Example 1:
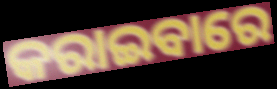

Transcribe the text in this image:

କରାଇବାରେ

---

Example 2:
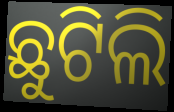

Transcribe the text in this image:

ଛୁଟିଲି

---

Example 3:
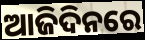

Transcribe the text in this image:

ଆଜିଦିନରେ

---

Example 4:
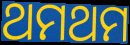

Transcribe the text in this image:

ଥମଥମ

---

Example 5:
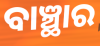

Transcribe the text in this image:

ବାଞ୍ଛାର